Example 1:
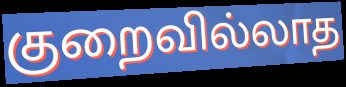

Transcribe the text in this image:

குறைவில்லாத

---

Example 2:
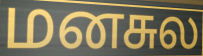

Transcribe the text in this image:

மனசுல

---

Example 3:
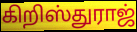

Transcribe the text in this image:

கிறிஸ்துராஜ்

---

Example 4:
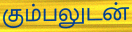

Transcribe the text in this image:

கும்பலுடன்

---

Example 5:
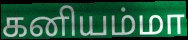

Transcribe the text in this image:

கனியம்மா